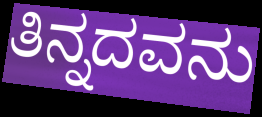
ತಿನ್ನದವನು